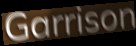
Garrison